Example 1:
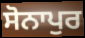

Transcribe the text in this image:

ਸੋਨਾਪੁਰ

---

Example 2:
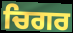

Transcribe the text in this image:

ਚਿਗਰ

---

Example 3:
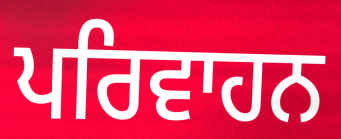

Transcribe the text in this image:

ਪਰਿਵਾਹਨ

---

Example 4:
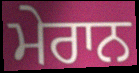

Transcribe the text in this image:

ਮੇਰਾਨ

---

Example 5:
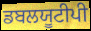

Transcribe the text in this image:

ਡਬਲਯੂਟੀਪੀ